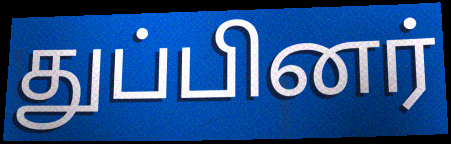
துப்பினர்